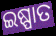
ଇଷ୍ପାତ